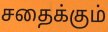
சதைக்கும்